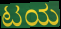
ಟಯ